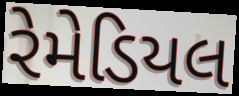
રેમેડિયલ